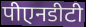
पीएनडीटी